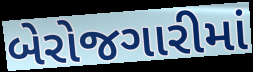
બેરોજગારીમાં